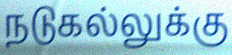
நடுகல்லுக்கு